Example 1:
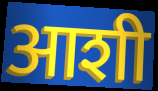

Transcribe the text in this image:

आशी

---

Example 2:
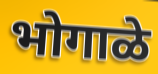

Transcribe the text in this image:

भोगाळे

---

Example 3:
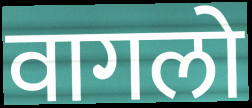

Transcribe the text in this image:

वागलो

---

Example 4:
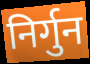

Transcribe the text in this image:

निर्गुन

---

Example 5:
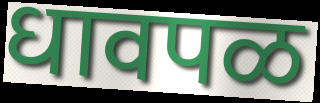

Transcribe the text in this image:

धावपळ